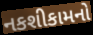
નકશીકામનો